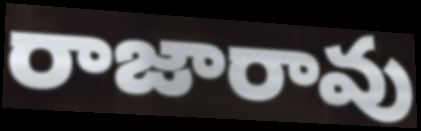
రాజారావు